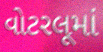
વોટરલૂમાં